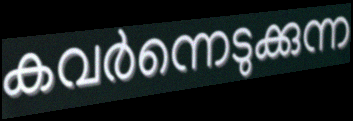
കവർന്നെടുക്കുന്ന